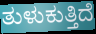
ತುಳುಕುತ್ತಿದೆ